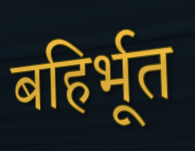
बहिर्भूत